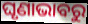
ଘୃଣାଭାବରୁ